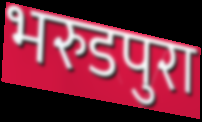
भरुडपुरा